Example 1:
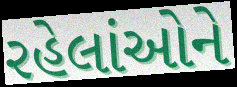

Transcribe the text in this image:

રહેલાંઓને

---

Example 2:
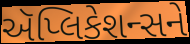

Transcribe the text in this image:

ઍપ્લિકેશન્સને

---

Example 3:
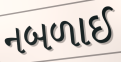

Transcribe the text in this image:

નબળાઈ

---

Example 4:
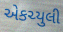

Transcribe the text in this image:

એકચ્યુલી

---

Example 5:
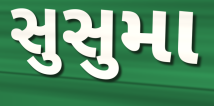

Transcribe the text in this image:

સુસુમા